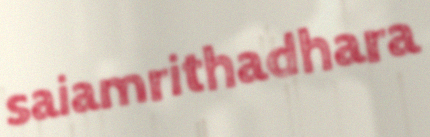
saiamrithadhara